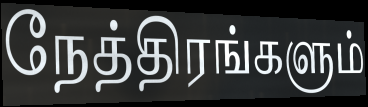
நேத்திரங்களும்